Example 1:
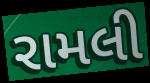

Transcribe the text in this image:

રામલી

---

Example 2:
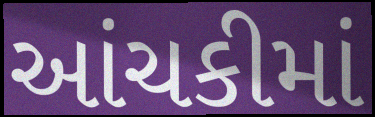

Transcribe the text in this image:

આંચકીમાં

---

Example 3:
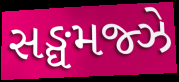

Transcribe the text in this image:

સઙ્ઘમજ્ઝે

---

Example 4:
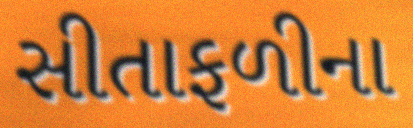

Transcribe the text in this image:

સીતાફળીના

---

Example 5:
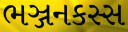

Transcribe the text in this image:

ભઞ્જનકસ્સ